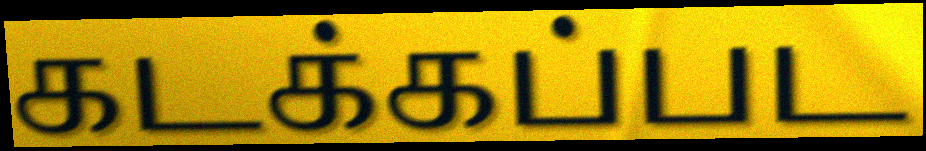
கடக்கப்பட